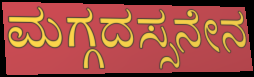
ಮಗ್ಗದಸ್ಸನೇನ